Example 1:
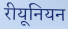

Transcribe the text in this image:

रीयूनियन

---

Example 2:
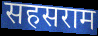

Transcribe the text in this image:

सहसराम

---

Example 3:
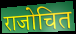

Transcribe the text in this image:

राजोचित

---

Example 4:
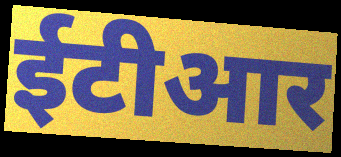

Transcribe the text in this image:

ईटीआर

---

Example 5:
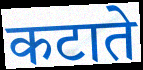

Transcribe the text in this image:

कटाते